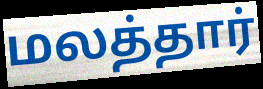
மலத்தார்